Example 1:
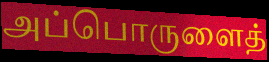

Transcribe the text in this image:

அப்பொருளைத்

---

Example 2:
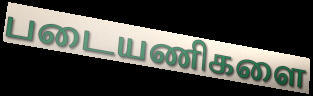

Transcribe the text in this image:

படையணிகளை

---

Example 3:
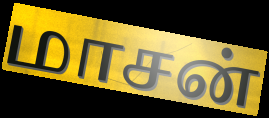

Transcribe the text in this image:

மாசன்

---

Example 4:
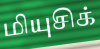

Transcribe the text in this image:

மியுசிக்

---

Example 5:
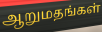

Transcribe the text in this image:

ஆறுமதங்கள்